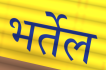
भर्तेल